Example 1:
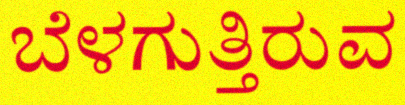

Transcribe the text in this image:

ಬೆಳಗುತ್ತಿರುವ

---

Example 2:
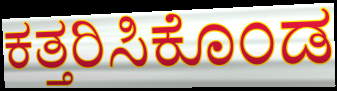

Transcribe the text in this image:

ಕತ್ತರಿಸಿಕೊಂಡ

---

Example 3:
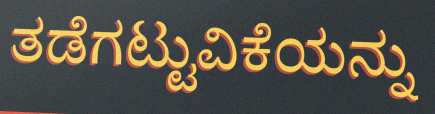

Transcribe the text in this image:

ತಡೆಗಟ್ಟುವಿಕೆಯನ್ನು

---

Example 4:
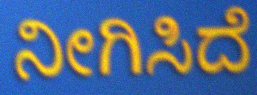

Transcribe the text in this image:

ನೀಗಿಸಿದೆ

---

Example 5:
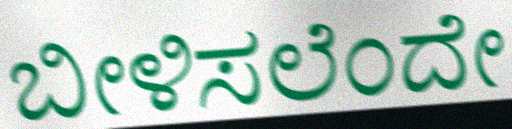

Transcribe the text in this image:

ಬೀಳಿಸಲೆಂದೇ